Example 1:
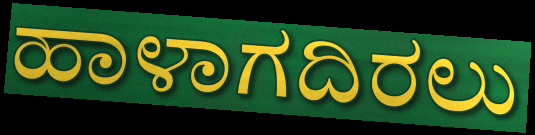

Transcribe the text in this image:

ಹಾಳಾಗದಿರಲು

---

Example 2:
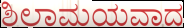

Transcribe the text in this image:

ಶಿಲಾಮಯವಾದ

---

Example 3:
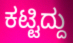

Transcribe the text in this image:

ಕಟ್ಟಿದ್ದು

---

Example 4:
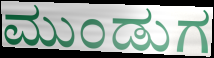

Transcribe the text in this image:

ಮುಂಡುಗ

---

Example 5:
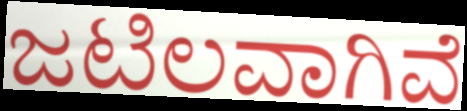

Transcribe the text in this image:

ಜಟಿಲವಾಗಿವೆ